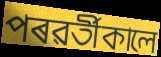
পৰৱৰ্তীকালে